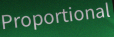
Proportional